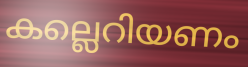
കല്ലെറിയണം